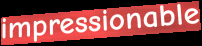
impressionable